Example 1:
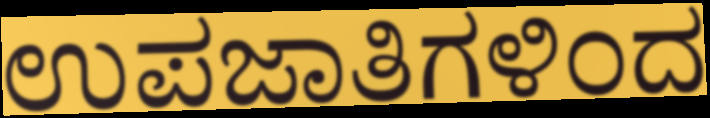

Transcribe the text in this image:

ಉಪಜಾತಿಗಳಿಂದ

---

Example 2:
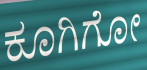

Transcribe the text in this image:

ಕೂಗಿಗೋ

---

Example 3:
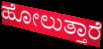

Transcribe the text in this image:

ಹೋಲುತ್ತಾರೆ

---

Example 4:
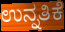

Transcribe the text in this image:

ಉನ್ನತಿಕೆ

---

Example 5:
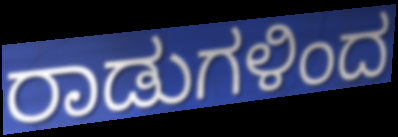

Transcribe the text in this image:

ರಾಡುಗಳಿಂದ